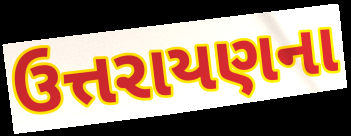
ઉત્તરાયણના